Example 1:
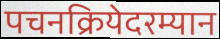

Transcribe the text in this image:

पचनक्रियेदरम्यान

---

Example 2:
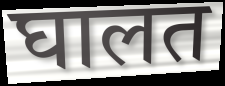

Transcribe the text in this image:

घालत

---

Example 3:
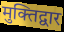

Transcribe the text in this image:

मुक्तिद्वार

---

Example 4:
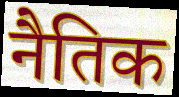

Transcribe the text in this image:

नैतिक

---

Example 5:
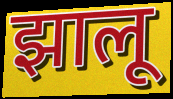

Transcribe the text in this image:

झालू